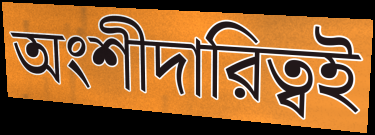
অংশীদারিত্বই